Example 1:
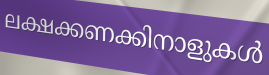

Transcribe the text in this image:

ലക്ഷക്കണക്കിനാളുകൾ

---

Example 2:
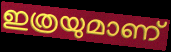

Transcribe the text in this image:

ഇത്രയുമാണ്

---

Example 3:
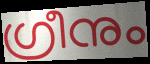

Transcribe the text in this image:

ഗ്രീനും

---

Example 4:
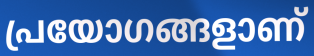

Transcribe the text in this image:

പ്രയോഗങ്ങളാണ്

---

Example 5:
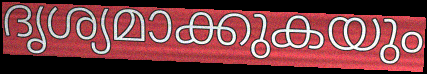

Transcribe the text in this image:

ദൃശ്യമാക്കുകയും